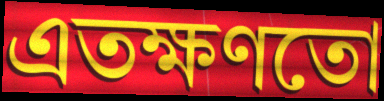
এতক্ষণতো